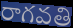
రాగవతి